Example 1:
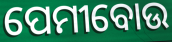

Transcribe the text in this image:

ପେମୀବୋଉ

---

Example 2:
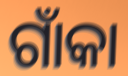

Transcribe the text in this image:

ଗାଁକା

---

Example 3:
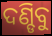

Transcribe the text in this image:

ଦଣ୍ଡିବୁ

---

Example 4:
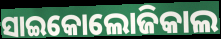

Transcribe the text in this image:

ସାଇକୋଲୋଜିକାଲ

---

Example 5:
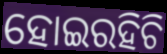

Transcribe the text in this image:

ହୋଇରହିଚି